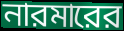
নারমারের